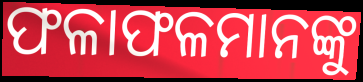
ଫଳାଫଳମାନଙ୍କୁ